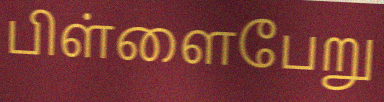
பிள்ளைபேறு